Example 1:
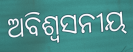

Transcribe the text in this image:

ଅବିଶ୍ବସନୀୟ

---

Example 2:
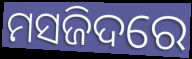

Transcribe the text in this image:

ମସଜିଦରେ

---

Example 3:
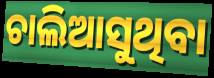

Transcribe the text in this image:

ଚାଲିଆସୁଥିବା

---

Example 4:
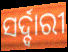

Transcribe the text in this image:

ସର୍ଦ୍ଦାରୀ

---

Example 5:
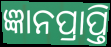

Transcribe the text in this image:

ଜ୍ଞାନପ୍ରାପ୍ତି